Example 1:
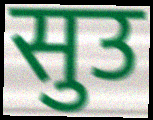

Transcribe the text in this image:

सुउ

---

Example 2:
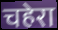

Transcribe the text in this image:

चहेरा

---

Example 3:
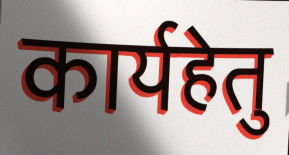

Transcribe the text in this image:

कार्यहेतु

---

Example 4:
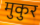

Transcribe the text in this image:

मुकुर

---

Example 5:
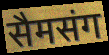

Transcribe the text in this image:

सैमसंग